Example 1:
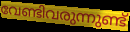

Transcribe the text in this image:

വേണ്ടിവരുന്നുണ്ട്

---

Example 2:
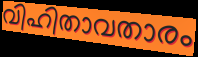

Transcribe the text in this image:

വിഹിതാവതാരം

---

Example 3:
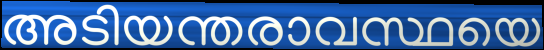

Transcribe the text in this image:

അടിയന്തരാവസ്ഥയെ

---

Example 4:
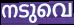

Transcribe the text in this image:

നടുവെ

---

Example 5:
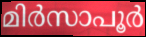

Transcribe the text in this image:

മിർസാപൂർ